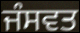
ਜੰਸਵਤ